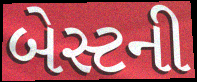
બેસ્ટની